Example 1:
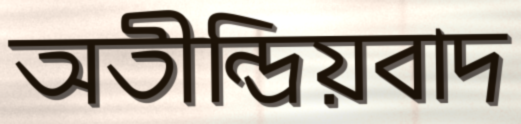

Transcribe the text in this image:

অতীন্দ্রিয়বাদ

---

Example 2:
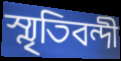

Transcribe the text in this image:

স্মৃতিবন্দী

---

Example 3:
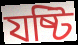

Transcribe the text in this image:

যষ্টি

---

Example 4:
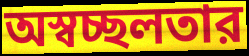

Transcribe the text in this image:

অস্বচ্ছলতার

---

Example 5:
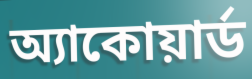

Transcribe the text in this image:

অ্যাকোয়ার্ড